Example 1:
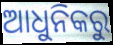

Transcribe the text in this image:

ଆଧୁନିକରୁ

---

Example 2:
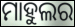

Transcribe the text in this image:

ମାହୁଲର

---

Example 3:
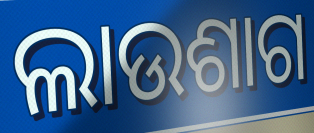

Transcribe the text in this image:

ଲାଉଶାଗ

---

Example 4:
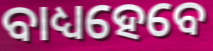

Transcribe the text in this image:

ବାଧ୍ୟହେବେ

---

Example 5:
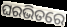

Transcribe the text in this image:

ଘରଭିତରେ